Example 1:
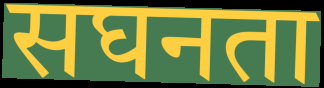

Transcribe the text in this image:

सघनता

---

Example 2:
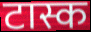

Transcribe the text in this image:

टास्क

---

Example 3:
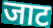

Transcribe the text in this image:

जाट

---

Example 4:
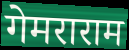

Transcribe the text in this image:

गेमराराम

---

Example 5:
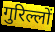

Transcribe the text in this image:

गुरिल्लों